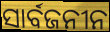
ସାର୍ବଜନୀନ